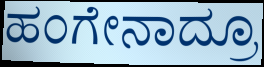
ಹಂಗೇನಾದ್ರೂ